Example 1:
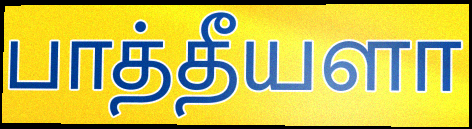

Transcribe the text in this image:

பாத்தீயளா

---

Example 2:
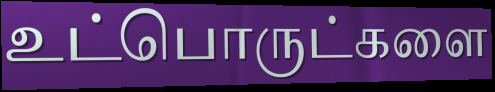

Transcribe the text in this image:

உட்பொருட்களை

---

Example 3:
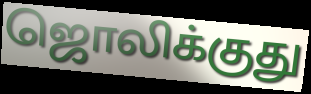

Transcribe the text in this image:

ஜொலிக்குது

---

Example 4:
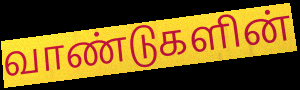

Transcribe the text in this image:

வாண்டுகளின்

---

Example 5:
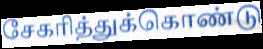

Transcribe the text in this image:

சேகரித்துக்கொண்டு